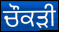
ਚੌਕੜੀ